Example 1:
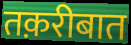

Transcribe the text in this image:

तक़रीबात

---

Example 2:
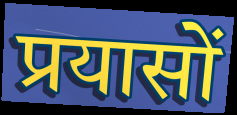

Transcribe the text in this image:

प्रयासों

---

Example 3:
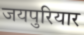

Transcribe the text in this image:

जयपुरियार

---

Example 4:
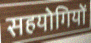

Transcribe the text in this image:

सहयोगियों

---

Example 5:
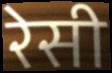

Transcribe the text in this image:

रेसी